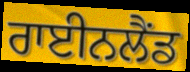
ਰਾਈਨਲੈਂਡ